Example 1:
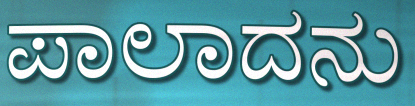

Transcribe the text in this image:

ಪಾಲಾದನು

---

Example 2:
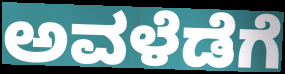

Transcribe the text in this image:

ಅವಳೆಡೆಗೆ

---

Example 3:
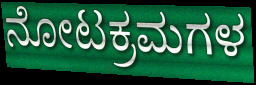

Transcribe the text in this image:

ನೋಟಕ್ರಮಗಳ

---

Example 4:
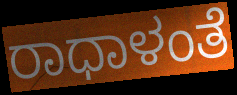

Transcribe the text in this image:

ರಾಧಾಳಂತೆ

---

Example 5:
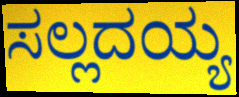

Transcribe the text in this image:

ಸಲ್ಲದಯ್ಯ